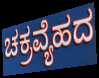
ಚಕ್ರವ್ಯೆಹದ